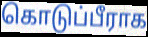
கொடுப்பீராக